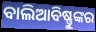
ବାଲିଆବିଷ୍ଣୁଙ୍କର